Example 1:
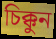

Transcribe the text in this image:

চিক্কুন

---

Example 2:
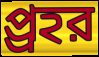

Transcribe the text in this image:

প্র্রহর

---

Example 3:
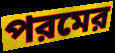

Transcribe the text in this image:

পরমের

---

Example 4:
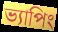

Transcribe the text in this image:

ভ্যাপিং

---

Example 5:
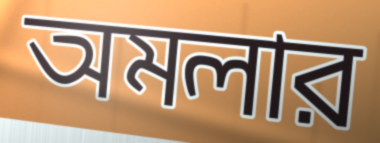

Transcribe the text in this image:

অমলার